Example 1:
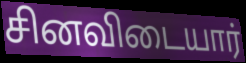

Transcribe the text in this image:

சினவிடையார்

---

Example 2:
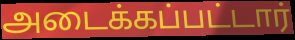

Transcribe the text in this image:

அடைக்கப்பட்டார்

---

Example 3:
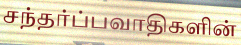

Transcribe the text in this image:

சந்தர்ப்பவாதிகளின்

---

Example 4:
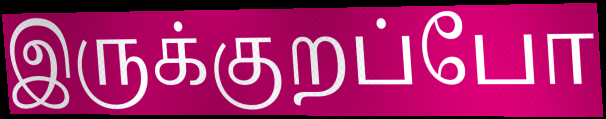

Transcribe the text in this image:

இருக்குறப்போ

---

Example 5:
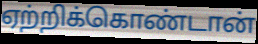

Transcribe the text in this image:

ஏற்றிக்கொண்டான்